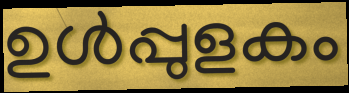
ഉൾപ്പുളകം